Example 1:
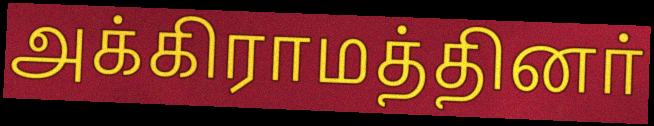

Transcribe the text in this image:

அக்கிராமத்தினர்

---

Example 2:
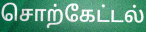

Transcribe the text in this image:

சொற்கேட்டல்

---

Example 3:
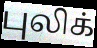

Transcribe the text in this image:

புலிக்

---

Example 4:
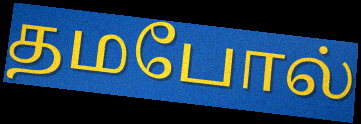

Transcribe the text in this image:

தமபோல்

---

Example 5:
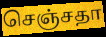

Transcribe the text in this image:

செஞ்சதா